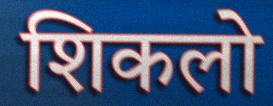
शिकलो